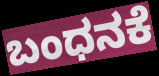
ಬಂಧನಕೆ